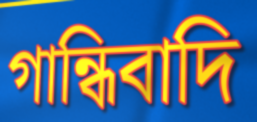
গান্ধিবাদি